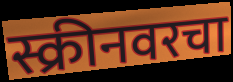
स्क्रीनवरचा